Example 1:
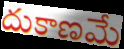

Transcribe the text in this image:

దుకాణమే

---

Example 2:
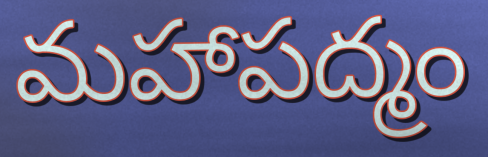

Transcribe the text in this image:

మహాపద్మం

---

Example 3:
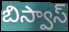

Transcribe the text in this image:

బిస్వాస్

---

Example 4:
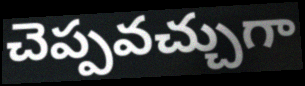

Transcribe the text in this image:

చెప్పవచ్చుగా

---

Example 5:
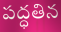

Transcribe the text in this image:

పద్ధతిన